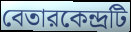
বেতারকেন্দ্রটি